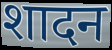
शादन